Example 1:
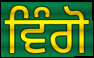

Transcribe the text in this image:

ਵਿੰਗੋ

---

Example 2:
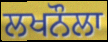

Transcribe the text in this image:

ਲਖਨੌਲਾ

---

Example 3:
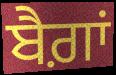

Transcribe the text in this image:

ਬੈਗ਼ਾਂ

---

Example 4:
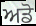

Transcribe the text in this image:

ਅਡੋ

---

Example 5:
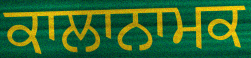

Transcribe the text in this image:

ਕਾਲਾਨਾਮਕ